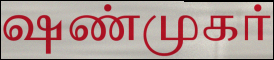
ஷண்முகர்